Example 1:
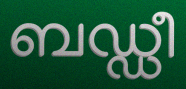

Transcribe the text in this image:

ബഡ്ഡീ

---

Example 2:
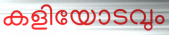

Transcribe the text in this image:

കളിയോടവും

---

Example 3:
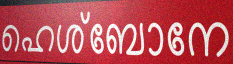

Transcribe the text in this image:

ഹെശ്ബോനേ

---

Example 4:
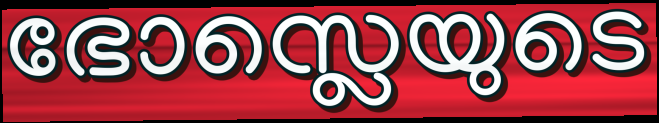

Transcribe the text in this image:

ഭോസ്ലെയുടെ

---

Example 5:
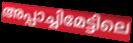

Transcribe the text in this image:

അപ്പാച്ചിമേട്ടിലെ